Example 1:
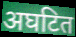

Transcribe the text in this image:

अघटित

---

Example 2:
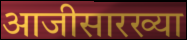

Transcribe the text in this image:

आजीसारख्या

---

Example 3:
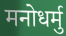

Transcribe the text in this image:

मनोधर्मु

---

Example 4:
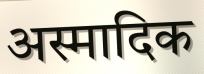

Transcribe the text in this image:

अस्मादिक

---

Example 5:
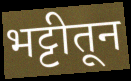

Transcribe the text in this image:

भट्टीतून